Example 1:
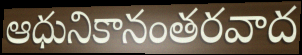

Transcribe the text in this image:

ఆధునికానంతరవాద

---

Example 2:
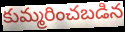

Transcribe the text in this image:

కుమ్మరించబడిన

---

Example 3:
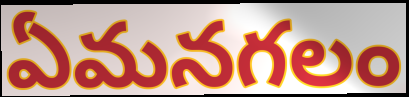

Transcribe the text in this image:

ఏమనగలం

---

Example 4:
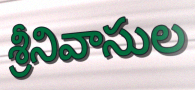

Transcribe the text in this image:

శ్రీనివాసుల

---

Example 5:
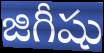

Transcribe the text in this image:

జిగీషు